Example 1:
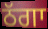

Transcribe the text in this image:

ਠੱਗਾ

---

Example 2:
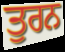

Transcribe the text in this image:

ਤੁਰਨ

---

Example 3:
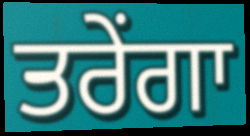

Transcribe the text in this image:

ਤਰੇਂਗਾ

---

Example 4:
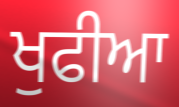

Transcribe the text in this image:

ਖੁਫੀਆ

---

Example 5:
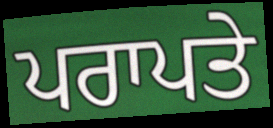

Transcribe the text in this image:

ਪਰਾਪਤੇ